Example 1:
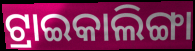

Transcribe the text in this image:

ଟ୍ରାଇକାଲିଙ୍ଗା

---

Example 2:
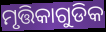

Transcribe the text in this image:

ମୃତ୍ତିକାଗୁଡିକ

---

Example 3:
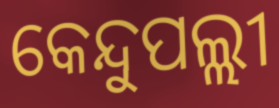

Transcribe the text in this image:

କେନ୍ଦୁପଲ୍ଲୀ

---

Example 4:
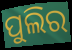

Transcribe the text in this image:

ପୁଲିର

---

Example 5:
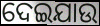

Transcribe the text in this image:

ଦେଇଯାଉ